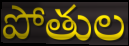
పోతుల